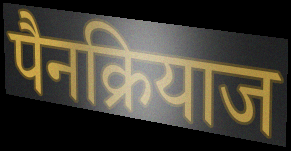
पैनक्रियाज